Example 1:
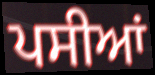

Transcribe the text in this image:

ਪਸੀਆਂ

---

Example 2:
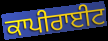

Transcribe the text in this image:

ਕਾਪੀਰਾਈਟ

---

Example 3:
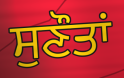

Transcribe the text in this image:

ਸੁਣੌਤਾਂ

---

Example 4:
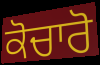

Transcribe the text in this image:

ਕੋਚਾਰੋ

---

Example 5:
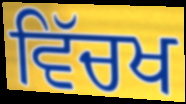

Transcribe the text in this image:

ਵਿੱਚਖ